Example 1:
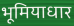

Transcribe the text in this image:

भूमियाधार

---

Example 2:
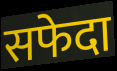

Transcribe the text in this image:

सफेदा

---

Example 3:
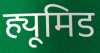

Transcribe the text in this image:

ह्यूमिड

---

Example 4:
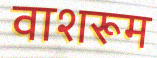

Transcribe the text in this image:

वाशरूम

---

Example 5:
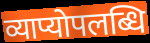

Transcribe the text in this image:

व्याप्योपलब्धि